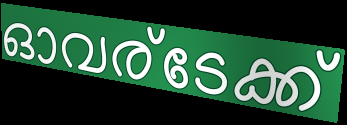
ഓവര്ടേക്ക്